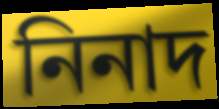
নিনাদ